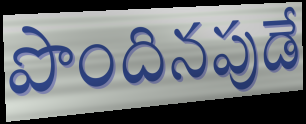
పొందినపుడే